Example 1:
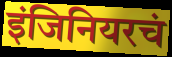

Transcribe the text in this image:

इंजिनियरचं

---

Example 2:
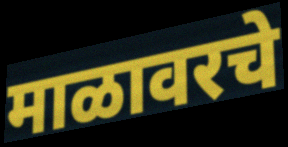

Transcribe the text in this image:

माळावरचे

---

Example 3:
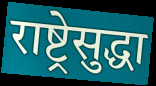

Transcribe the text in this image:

राष्ट्रेसुद्धा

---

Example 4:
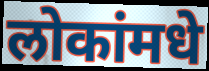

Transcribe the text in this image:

लोकांमधे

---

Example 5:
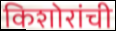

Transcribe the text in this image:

किशोरांची